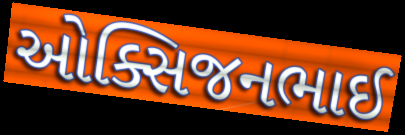
ઓક્સિજનભાઈ